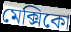
মেক্সিকো